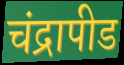
चंद्रापीड